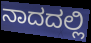
ನಾದದಲ್ಲಿ